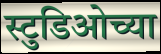
स्टुडिओच्या